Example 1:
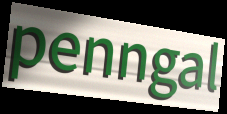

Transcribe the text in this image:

penngal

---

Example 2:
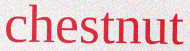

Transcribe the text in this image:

chestnut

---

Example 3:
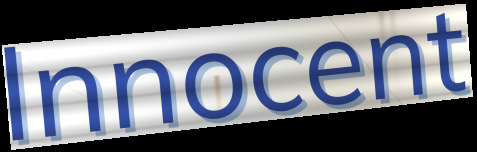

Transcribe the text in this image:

Innocent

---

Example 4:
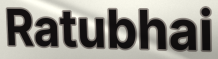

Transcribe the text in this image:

Ratubhai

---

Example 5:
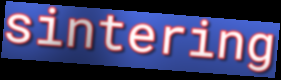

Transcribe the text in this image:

sintering